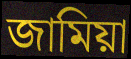
জামিয়া